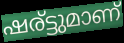
ഷര്ട്ടുമാണ്